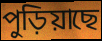
পুড়িয়াছে